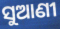
ସୁଆଣୀ